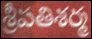
శ్రీపతిశర్మ